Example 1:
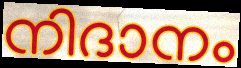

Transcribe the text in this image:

നിദാനം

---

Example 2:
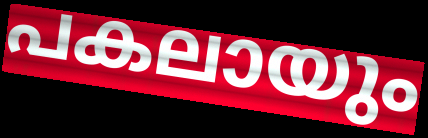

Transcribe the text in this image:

പകലായും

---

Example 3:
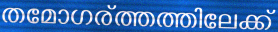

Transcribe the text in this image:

തമോഗര്ത്തത്തിലേക്ക്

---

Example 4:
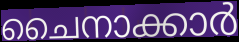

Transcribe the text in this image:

ചൈനാക്കാർ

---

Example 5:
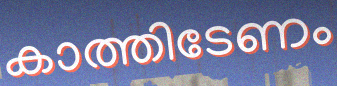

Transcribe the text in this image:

കാത്തിടേണം